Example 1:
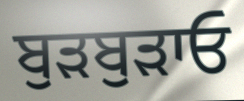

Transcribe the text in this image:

ਬੁੜਬੁੜਾਓ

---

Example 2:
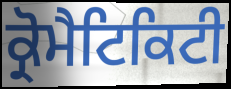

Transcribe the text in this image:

ਕ੍ਰੋਮੈਟਿਕਿਟੀ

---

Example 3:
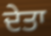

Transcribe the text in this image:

ਦੇਤਾ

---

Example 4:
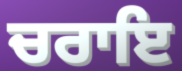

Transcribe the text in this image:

ਚਰਾਇ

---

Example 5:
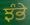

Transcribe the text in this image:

ਝੰਭੇ